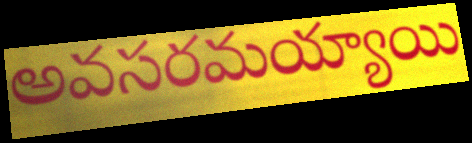
అవసరమయ్యాయి